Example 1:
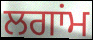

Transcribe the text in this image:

ਲਗਾਂਮ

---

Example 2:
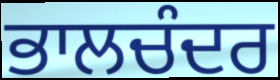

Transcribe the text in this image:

ਭਾਲਚੰਦਰ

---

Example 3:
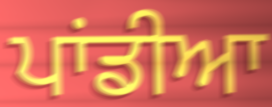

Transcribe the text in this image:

ਪਾਂਡੀਆ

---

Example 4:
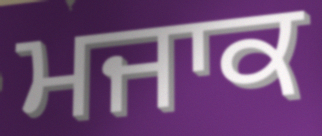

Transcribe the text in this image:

ਮਜਾਕ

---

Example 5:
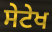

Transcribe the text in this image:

ਸੇਟੇਖ